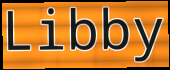
Libby